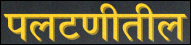
पलटणीतील